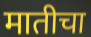
मातीचा